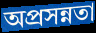
অপ্রসন্নতা